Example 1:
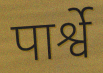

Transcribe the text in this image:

पार्श्वे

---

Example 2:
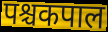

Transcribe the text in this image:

पश्चकपाल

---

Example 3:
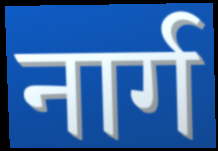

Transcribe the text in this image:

नार्ग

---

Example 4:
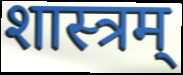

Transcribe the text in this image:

शास्त्रम्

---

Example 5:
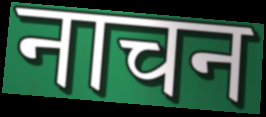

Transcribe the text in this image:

नाचन